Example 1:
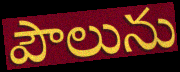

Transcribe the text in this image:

పౌలును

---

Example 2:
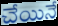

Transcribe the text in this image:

చేయినే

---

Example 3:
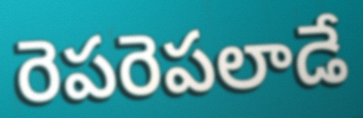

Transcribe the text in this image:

రెపరెపలాడే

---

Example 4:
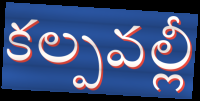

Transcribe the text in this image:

కల్పవల్లీ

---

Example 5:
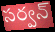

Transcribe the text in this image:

సర్వన్